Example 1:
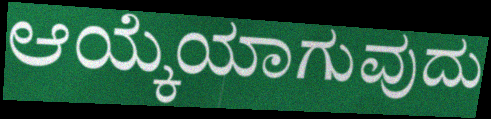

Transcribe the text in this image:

ಆಯ್ಕೆಯಾಗುವುದು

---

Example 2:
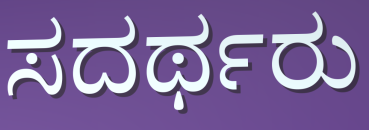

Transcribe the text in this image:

ಸದರ್ಥರು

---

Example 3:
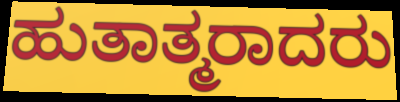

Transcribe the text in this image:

ಹುತಾತ್ಮರಾದರು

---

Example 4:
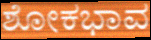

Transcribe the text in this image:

ಶೋಕಭಾವ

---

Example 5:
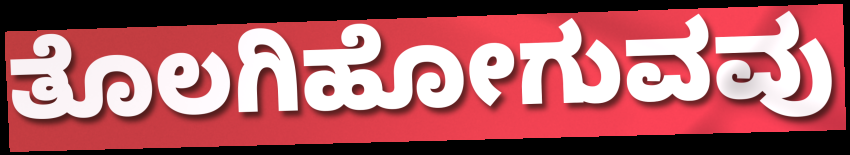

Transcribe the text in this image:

ತೊಲಗಿಹೋಗುವವು